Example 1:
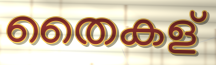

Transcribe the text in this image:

തൈകള്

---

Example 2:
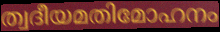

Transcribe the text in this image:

ത്വദീയമതിമോഹനം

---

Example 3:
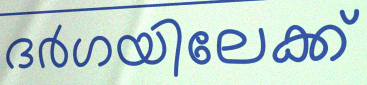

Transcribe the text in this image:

ദർഗയിലേക്ക്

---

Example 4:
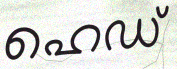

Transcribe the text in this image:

ഹെഡ്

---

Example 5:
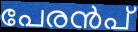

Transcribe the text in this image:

പേരൻപ്